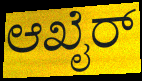
ಆಖೈರ್